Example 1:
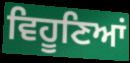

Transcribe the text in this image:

ਵਿਹੂਣਿਆਂ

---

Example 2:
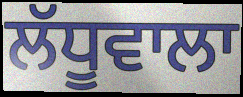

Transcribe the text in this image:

ਲੱਧੂਵਾਲਾ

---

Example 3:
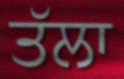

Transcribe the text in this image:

ਤੱਲਾ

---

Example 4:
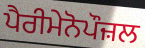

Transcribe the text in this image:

ਪੈਰੀਮੇਨੋਪੌਜ਼ਲ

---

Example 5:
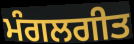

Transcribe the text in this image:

ਮੰਗਲਗੀਤ